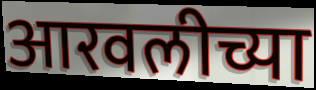
आरवलीच्या